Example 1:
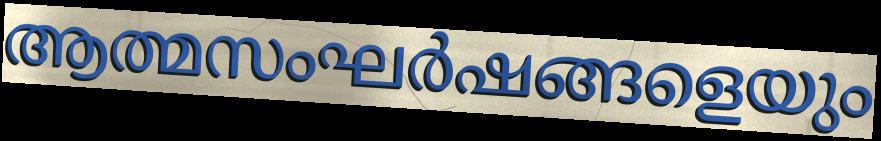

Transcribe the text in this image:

ആത്മസംഘർഷങ്ങളെയും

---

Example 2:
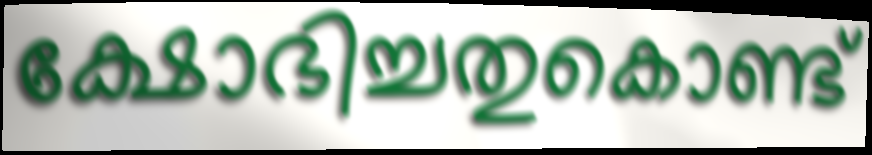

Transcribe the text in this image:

ക്ഷോഭിച്ചതുകൊണ്ട്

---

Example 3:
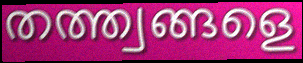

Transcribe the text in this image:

തത്ത്വങ്ങളെ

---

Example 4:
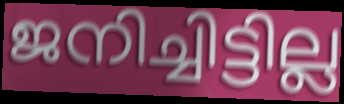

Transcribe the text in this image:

ജനിച്ചിട്ടില്ല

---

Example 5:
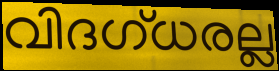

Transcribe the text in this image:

വിദഗ്ധരല്ല